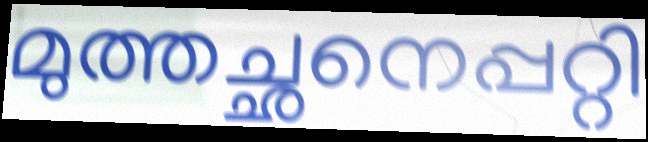
മുത്തച്ഛനെപ്പറ്റി